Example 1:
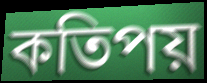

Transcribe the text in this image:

কতিপয়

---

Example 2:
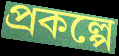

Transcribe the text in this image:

প্রকল্পে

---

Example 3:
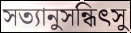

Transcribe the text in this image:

সত্যানুসন্ধিৎসু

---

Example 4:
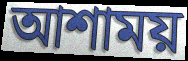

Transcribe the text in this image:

আশাময়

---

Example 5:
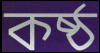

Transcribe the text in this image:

কষ্ঠ